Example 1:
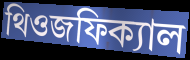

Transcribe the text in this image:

থিওজফিক্যাল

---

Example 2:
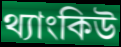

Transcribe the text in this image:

থ্যাংকিউ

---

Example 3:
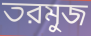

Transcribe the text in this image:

তরমুজ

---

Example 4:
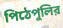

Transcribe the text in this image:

পিঠেপুলির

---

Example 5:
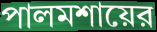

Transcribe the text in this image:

পালমশায়ের